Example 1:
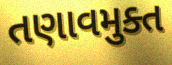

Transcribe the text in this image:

તણાવમુક્ત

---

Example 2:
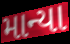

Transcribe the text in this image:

માન્યા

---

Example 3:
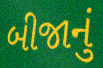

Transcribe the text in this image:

બીજાનું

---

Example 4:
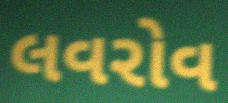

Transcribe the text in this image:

લવરોવ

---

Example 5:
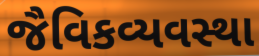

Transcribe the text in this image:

જૈવિકવ્યવસ્થા